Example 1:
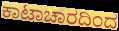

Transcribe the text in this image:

ಕಾಟಾಚಾರದಿಂದ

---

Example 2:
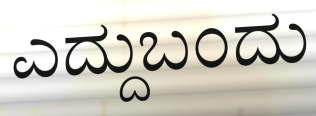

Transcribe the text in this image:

ಎದ್ದುಬಂದು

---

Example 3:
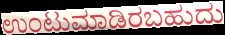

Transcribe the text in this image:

ಉಂಟುಮಾಡಿರಬಹುದು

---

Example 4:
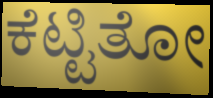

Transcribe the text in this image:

ಕೆಟ್ಟಿತೋ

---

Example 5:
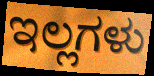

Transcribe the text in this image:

ಇಲ್ಲಗಳು